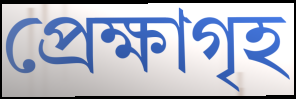
প্ৰেক্ষাগৃহ